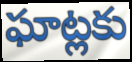
ఘాట్లకు